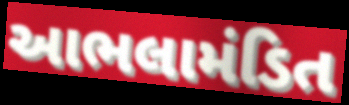
આભલામંડિત